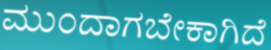
ಮುಂದಾಗಬೇಕಾಗಿದೆ